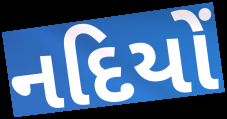
નદિયોં